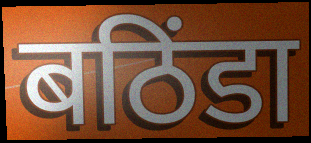
बठिंडा